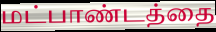
மட்பாண்டத்தை